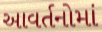
આવર્તનોમાં